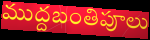
ముద్దబంతిపూలు